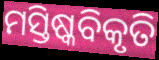
ମସ୍ତିଷ୍କବିକୃତି